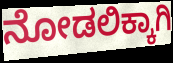
ನೋಡಲಿಕ್ಕಾಗಿ